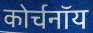
कोर्चनॉय